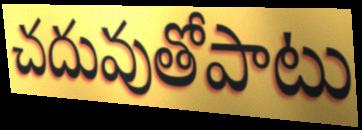
చదువుతోపాటు